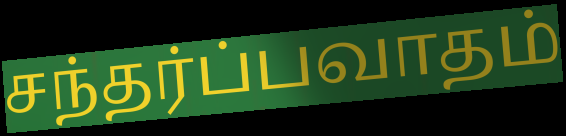
சந்தர்ப்பவாதம்